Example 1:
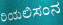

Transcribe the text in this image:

ರಿಯಲಿಸಂನ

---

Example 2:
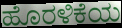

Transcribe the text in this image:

ಹೊರಳಿಕೆಯ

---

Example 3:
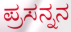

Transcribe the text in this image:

ಪ್ರಸನ್ನನ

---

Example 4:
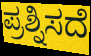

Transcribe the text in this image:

ಪ್ರಶ್ನಿಸದೆ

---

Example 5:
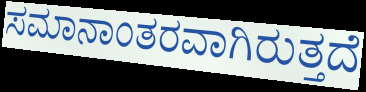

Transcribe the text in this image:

ಸಮಾನಾಂತರವಾಗಿರುತ್ತದೆ